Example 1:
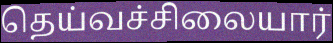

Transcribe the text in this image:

தெய்வச்சிலையார்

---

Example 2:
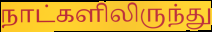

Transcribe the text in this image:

நாட்களிலிருந்து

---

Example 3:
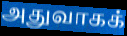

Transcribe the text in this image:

அதுவாகக்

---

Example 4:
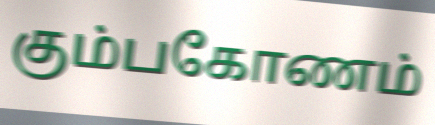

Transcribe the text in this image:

கும்பகோணம்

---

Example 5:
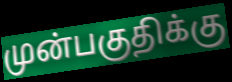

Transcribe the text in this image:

முன்பகுதிக்கு